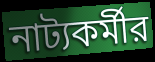
নাট্যকর্মীর